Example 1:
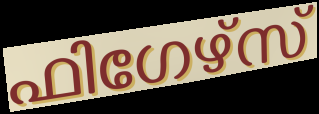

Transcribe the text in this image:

ഫിഗേഴ്സ്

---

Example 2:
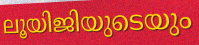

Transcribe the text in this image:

ലൂയിജിയുടെയും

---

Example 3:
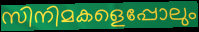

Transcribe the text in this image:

സിനിമകളെപ്പോലും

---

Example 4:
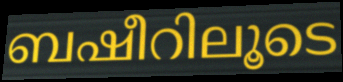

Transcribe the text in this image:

ബഷീറിലൂടെ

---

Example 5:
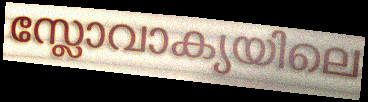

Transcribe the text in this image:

സ്ലോവാക്യയിലെ